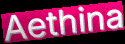
Aethina